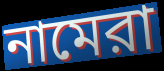
নামেরা